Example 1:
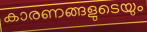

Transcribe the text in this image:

കാരണങ്ങളുടെയും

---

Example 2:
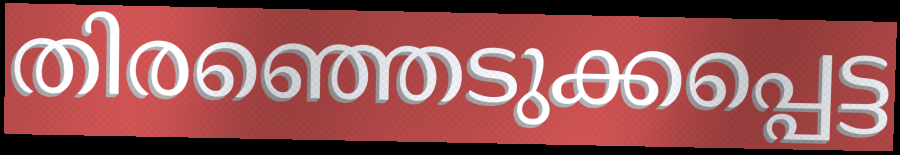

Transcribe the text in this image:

തിരഞ്ഞെടുക്കപ്പെട്ട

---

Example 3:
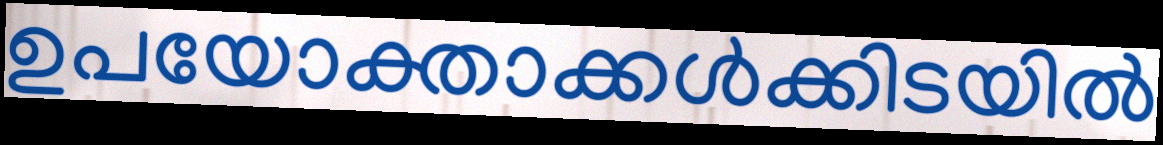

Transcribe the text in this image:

ഉപയോക്താക്കൾക്കിടയിൽ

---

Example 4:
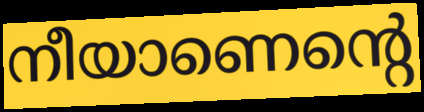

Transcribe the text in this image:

നീയാണെന്റെ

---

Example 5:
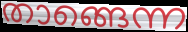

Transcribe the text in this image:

താങ്ങെന്ന